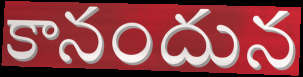
కానందున